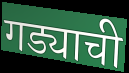
गड्याची